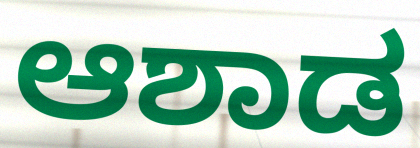
ಆಶಾಡ